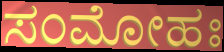
ಸಂಮೋಹಃ